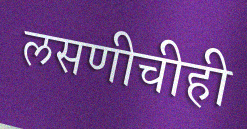
लसणीचीही